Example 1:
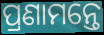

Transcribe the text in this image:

ପ୍ରଣାମନ୍ତେ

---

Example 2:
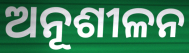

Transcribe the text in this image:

ଅନୂଶୀଳନ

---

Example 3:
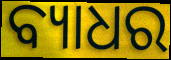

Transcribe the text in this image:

ବ୍ୟାଧର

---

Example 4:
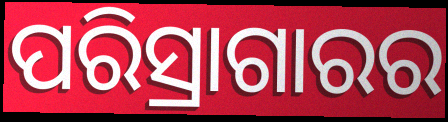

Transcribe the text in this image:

ପରିସ୍ରାଗାରର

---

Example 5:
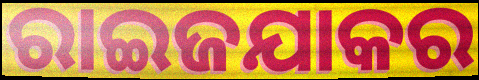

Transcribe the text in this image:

ରାଇଜଯାକର